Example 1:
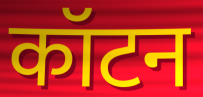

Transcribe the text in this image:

कॉटन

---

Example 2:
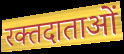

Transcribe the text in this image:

रक्तदाताओं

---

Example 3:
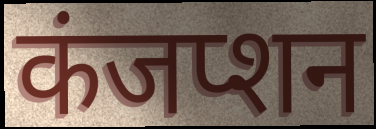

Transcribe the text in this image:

कंजप्शन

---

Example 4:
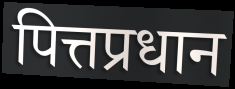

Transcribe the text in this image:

पित्तप्रधान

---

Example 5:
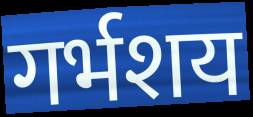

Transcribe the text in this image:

गर्भशय